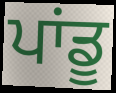
ਪਾਂਡੂ